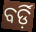
ବର୍ଡ଼ି